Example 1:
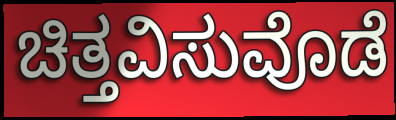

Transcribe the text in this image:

ಚಿತ್ತವಿಸುವೊಡೆ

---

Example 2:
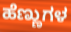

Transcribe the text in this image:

ಹೆಣ್ಣುಗಳ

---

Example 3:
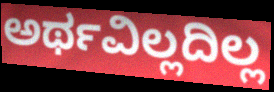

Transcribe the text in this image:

ಅರ್ಥವಿಲ್ಲದಿಲ್ಲ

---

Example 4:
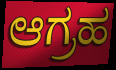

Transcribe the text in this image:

ಆಗ್ರಹ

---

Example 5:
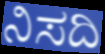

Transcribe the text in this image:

ನಿಸದಿ